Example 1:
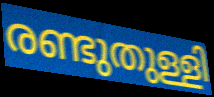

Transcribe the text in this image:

രണ്ടുതുള്ളി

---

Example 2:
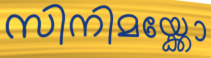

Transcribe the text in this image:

സിനിമയ്ക്കോ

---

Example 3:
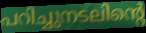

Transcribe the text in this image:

പറിച്ചുനടലിന്റെ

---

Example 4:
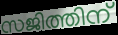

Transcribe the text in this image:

സജിത്തിന്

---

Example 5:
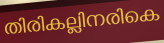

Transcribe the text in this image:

തിരികല്ലിനരികെ